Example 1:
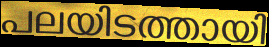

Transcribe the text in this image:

പലയിടത്തായി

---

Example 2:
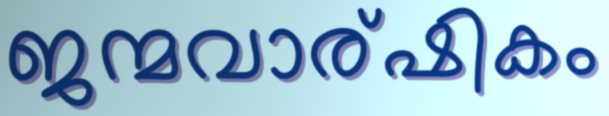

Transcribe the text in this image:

ജന്മവാര്ഷികം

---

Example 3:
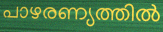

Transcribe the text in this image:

പാഴരണ്യത്തിൽ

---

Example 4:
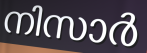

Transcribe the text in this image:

നിസാർ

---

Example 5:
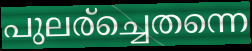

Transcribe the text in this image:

പുലര്ച്ചെതന്നെ